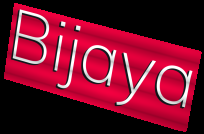
Bijaya